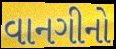
વાનગીનો